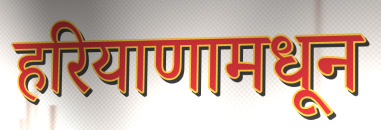
हरियाणामधून